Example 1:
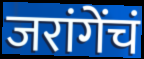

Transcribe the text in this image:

जरांगेंचं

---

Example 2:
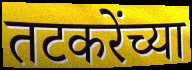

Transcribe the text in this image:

तटकरेंच्या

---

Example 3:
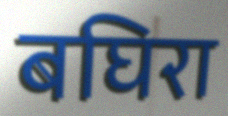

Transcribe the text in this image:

बघिरा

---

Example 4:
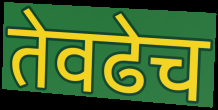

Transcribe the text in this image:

तेवढेच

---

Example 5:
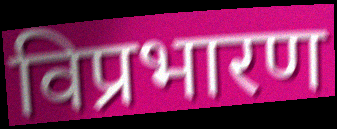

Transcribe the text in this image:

विप्रभारण